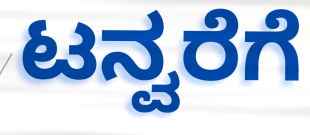
ಟನ್ವರೆಗೆ